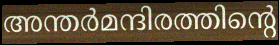
അന്തർമന്ദിരത്തിന്റെ